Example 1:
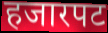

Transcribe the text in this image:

हजारपट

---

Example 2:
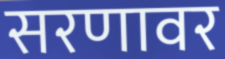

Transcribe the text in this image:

सरणावर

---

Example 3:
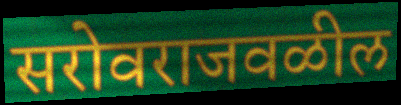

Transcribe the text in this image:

सरोवराजवळील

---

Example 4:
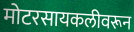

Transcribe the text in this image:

मोटरसायकलीवरून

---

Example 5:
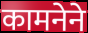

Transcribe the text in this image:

कामनेने